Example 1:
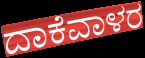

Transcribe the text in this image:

ದಾಕೆವಾಳರ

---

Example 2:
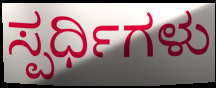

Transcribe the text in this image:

ಸ್ಪರ್ಧಿಗಳು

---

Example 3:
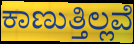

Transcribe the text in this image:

ಕಾಣುತ್ತಿಲ್ಲವೆ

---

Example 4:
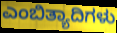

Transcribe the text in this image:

ಎಂಬಿತ್ಯಾದಿಗಳು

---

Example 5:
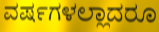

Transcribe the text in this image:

ವರ್ಷಗಳಲ್ಲಾದರೂ